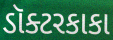
ડૉક્ટરકાકા